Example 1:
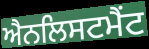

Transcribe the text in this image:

ਐਨਲਿਸਟਮੈਂਟ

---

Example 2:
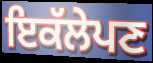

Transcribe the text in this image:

ਇਕੱਲੇਪਣ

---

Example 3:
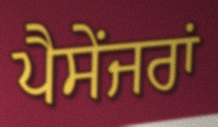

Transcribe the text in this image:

ਪੈਸੇਂਜਰਾਂ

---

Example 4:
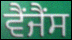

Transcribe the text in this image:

ਵੈਂਜੈਂਸ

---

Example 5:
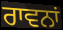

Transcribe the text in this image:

ਰਾਵਨਾਂ